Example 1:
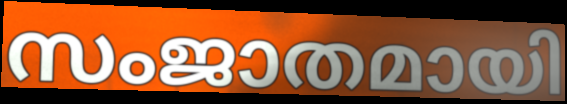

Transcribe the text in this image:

സംജാതമായി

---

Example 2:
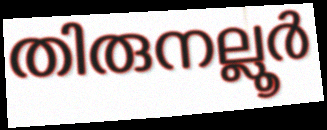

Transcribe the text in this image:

തിരുനല്ലൂർ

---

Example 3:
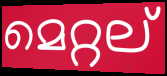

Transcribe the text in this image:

മെറ്റല്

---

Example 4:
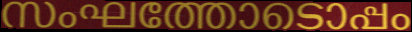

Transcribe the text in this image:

സംഘത്തോടൊപ്പം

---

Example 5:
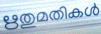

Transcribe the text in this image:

ഋതുമതികൾ